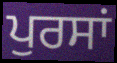
ਪੁਰਸਾਂ